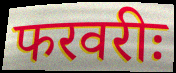
फरवरीः